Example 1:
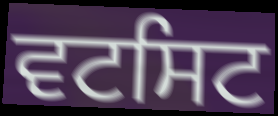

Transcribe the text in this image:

ਵਟਸਿਟ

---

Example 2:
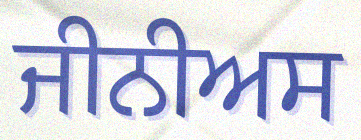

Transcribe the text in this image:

ਜੀਨੀਅਸ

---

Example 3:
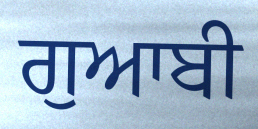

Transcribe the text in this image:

ਗੁਆਬੀ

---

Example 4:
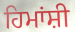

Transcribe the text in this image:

ਹਿਮਾਂਸ਼ੀ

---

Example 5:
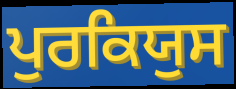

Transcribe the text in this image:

ਪੁਰਕਿਯੁਸ